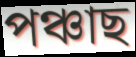
পঞ্চাছ